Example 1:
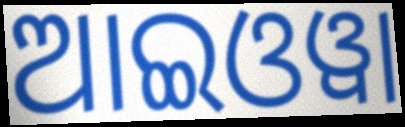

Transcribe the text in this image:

ଆଇଓୱା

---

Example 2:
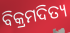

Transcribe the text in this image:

ବିକ୍ରମଦିତ୍ୟ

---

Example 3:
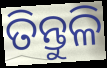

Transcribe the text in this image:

ତିନ୍ତୁଳି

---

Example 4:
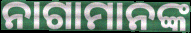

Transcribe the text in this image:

ନାଗାମାନଙ୍କ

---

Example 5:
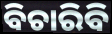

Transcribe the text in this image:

ବିଚାରିବି